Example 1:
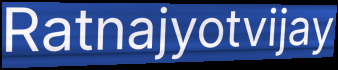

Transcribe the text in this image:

Ratnajyotvijay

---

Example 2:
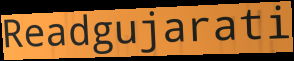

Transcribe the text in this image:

Readgujarati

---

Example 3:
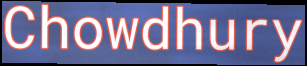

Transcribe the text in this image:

Chowdhury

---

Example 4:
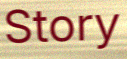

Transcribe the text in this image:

Story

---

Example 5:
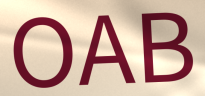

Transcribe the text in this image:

OAB